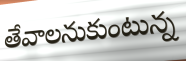
తేవాలనుకుంటున్న